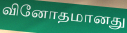
வினோதமானது